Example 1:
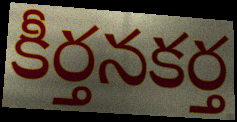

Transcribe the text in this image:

కీర్తనకర్త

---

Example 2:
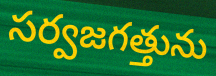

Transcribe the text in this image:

సర్వజగత్తును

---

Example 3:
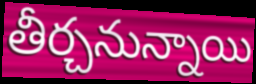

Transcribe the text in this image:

తీర్చనున్నాయి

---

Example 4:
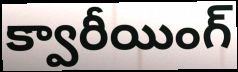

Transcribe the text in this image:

క్వారీయింగ్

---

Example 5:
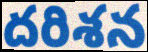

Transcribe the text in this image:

దరిశన